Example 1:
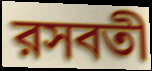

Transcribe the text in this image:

রসবতী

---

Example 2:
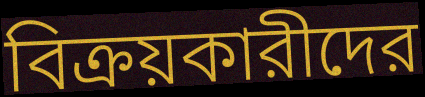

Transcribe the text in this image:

বিক্রয়কারীদের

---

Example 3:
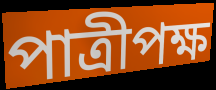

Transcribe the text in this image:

পাত্রীপক্ষ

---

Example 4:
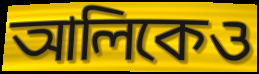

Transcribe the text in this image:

আলিকেও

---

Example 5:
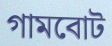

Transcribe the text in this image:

গামবোট